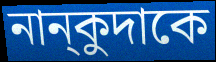
নান্‌কুদাকে